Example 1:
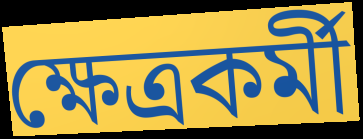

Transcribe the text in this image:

ক্ষেত্ৰকৰ্মী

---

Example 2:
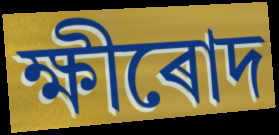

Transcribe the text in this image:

ক্ষীৰোদ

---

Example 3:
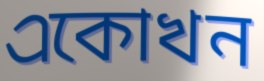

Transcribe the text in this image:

একোখন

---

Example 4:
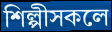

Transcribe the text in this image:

শিল্পীসকলে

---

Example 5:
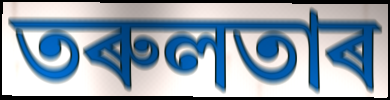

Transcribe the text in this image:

তৰুলতাৰ